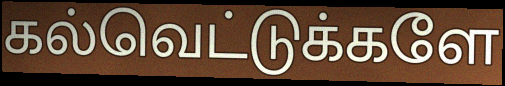
கல்வெட்டுக்களே